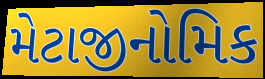
મેટાજીનોમિક